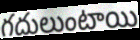
గదులుంటాయి